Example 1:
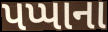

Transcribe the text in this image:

પપ્પાના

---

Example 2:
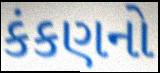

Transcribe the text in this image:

કંકણનો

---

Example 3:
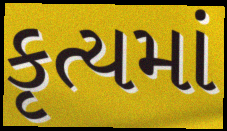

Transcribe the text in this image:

કૃત્યમાં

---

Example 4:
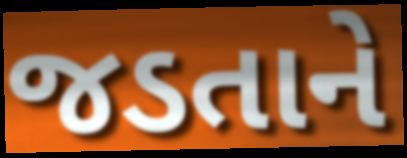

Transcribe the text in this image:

જડતાને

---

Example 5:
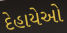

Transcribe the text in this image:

દેહાયેઓ